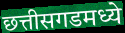
छत्तीसगडमध्ये